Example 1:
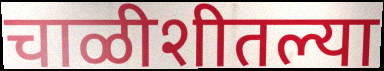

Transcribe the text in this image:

चाळीशीतल्या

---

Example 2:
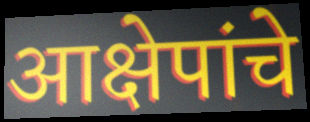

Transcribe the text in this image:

आक्षेपांचे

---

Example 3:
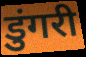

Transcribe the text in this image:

डुंगरी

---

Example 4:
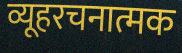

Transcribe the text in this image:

व्यूहरचनात्मक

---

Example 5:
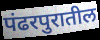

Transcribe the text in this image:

पंढरपुरातील